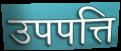
उपपत्ति